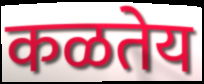
कळतेय